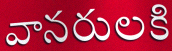
వానరులకి